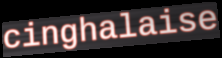
cinghalaise